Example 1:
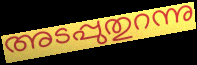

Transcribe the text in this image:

അടപ്പുതുറന്നു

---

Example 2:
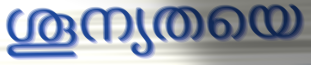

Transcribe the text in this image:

ശൂന്യതയെ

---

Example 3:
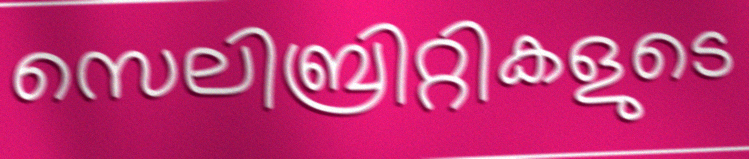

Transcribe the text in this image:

സെലിബ്രിറ്റികളുടെ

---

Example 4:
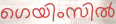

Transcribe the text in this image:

ഗെയിംസിൽ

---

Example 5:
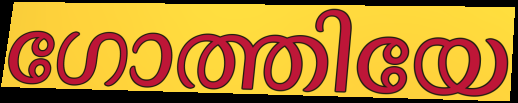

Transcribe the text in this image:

ഗോത്തിയേ